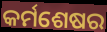
କର୍ମଶେଷର